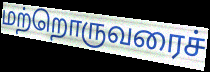
மற்றொருவரைச்